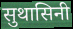
सुथासिनी